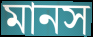
মানস